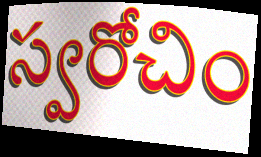
స్వరోచిం